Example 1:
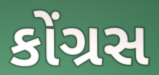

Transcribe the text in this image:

કોંગ્રસ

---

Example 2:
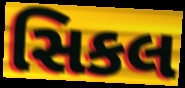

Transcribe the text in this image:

સિકલ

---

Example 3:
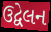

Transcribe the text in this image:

ઉદ્વેલન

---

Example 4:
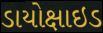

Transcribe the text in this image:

ડાયોક્ષાઇડ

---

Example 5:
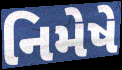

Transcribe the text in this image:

નિમેષે